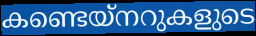
കണ്ടെയ്നറുകളുടെ